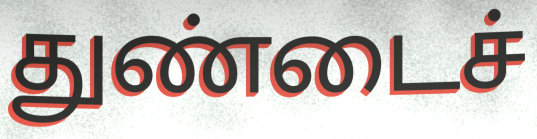
துண்டைச்